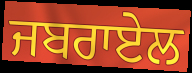
ਜਬਰਾਏਲ